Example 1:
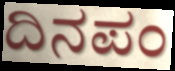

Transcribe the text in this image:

ದಿನಪಂ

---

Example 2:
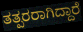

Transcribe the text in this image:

ತತ್ಪರರಾಗಿದ್ದಾರೆ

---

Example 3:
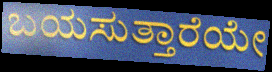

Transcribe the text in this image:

ಬಯಸುತ್ತಾರೆಯೇ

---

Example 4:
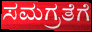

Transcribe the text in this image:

ಸಮಗ್ರತೆಗೆ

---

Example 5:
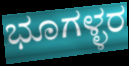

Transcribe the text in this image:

ಭೂಗಳ್ಳರ